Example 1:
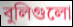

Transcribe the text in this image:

বুলিগুলো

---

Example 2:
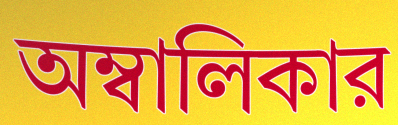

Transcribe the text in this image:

অম্বালিকার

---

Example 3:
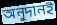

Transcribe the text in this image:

অনুদানই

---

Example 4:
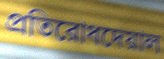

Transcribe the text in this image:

প্রতিরোধদেয়াল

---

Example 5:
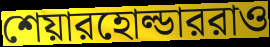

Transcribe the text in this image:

শেয়ারহোল্ডাররাও